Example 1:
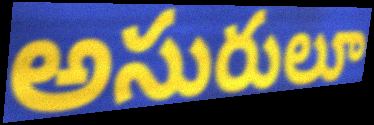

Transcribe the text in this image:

అసురులూ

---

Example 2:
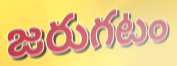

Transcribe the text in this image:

జరుగటం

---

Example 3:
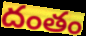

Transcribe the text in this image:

దంతం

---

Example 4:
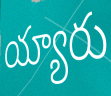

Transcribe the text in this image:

య్యారు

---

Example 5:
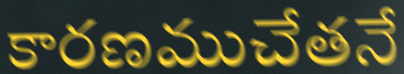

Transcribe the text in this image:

కారణముచేతనే